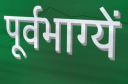
पूर्वभाग्यें